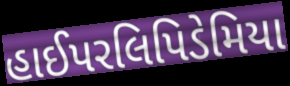
હાઈપરલિપિડેમિયા